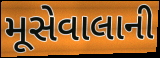
મૂસેવાલાની